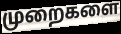
முறைகளை